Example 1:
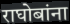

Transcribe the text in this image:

राघोबांना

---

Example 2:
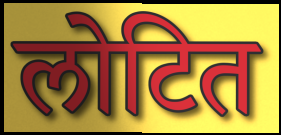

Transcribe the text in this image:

लोटित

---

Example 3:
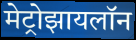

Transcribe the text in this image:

मेट्रोझायलॉन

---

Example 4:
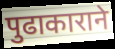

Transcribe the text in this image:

पुढाकाराने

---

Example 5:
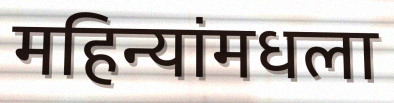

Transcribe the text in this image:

महिन्यांमधला